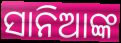
ସାନିଆଙ୍କ